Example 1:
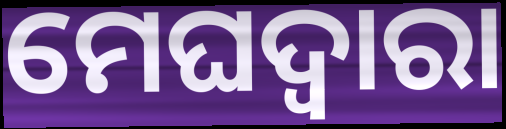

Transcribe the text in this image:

ମେଘଦ୍ୱାରା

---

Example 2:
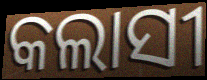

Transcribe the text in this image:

କଲାସୀ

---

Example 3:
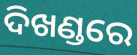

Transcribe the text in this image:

ଦିଖଣ୍ଡରେ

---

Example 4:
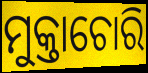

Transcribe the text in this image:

ମୁକ୍ତାଚୋରି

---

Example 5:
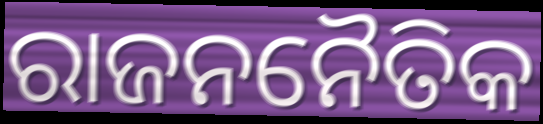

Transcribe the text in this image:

ରାଜନନୈତିକ